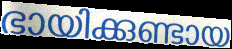
ഭായിക്കുണ്ടായ